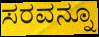
ಸರವನ್ನೂ